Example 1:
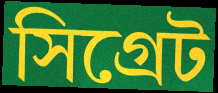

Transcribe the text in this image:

সিগ্রেট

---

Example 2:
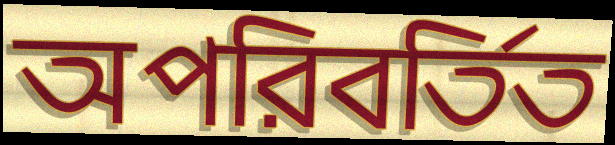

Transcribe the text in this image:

অপরিবর্তিত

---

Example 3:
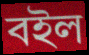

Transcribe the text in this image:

বইল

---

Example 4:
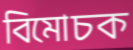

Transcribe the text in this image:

বিমোচক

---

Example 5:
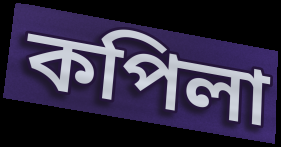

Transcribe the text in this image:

কপিলা